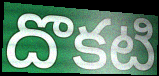
దొకటి